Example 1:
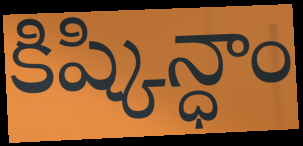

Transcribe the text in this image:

కిష్కిన్ధాం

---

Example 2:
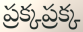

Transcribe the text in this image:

ప్రక్కప్రక్క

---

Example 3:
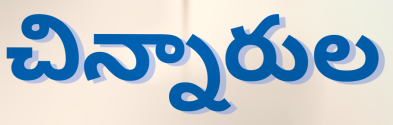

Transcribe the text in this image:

చిన్నారుల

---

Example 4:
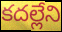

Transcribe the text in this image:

కదల్లేని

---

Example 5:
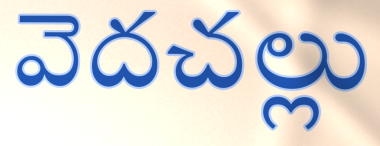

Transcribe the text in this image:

వెదచల్లు